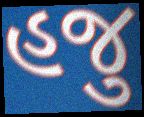
હજુ